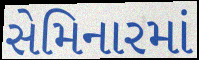
સેમિનારમાં